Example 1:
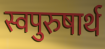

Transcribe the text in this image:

स्वपुरुषार्थ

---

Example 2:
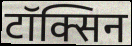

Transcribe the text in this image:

टॉक्सिन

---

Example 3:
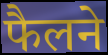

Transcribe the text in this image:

फैलने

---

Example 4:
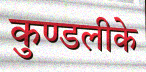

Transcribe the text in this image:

कुण्डलीके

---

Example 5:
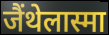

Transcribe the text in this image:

जैंथेलास्मा